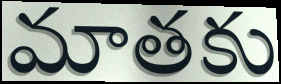
మాతకు